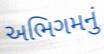
અભિગમનું